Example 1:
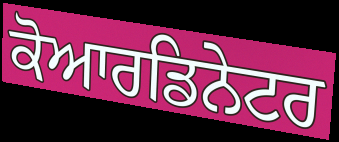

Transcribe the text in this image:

ਕੋਆਰਡਿਨੇਟਰ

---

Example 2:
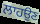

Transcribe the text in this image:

ਲਾਹਉਣ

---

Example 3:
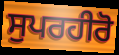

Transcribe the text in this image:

ਸੁਪਰਹੀਰੋ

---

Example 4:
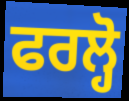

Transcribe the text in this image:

ਫਰਲ੍ਹੋ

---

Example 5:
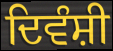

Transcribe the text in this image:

ਦਿਵੰਸ਼ੀ